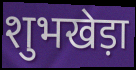
शुभखेड़ा